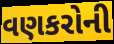
વણકરોની